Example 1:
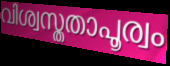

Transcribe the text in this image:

വിശ്വസ്തതാപൂര്വം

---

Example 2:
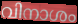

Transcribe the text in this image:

വിനാശം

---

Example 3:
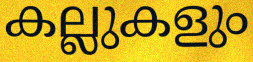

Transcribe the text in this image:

കല്ലുകളും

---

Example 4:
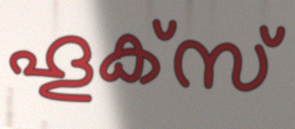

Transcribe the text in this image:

ഹൂക്സ്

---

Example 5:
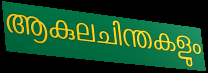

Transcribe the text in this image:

ആകുലചിന്തകളും